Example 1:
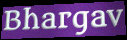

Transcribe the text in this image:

Bhargav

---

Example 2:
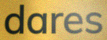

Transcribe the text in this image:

dares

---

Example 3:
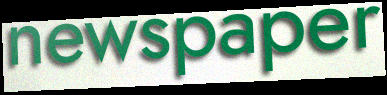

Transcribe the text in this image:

newspaper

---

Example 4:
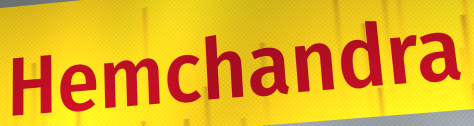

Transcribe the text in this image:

Hemchandra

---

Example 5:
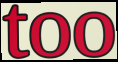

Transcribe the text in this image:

too